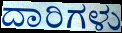
ದಾರಿಗಳು